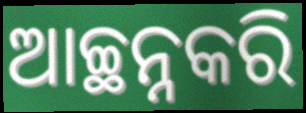
ଆଚ୍ଛନ୍ନକରି